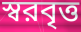
স্বরবৃত্ত